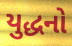
યુદ્ધનો